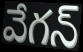
వేగన్